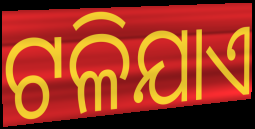
ଟଳିଯାଏ